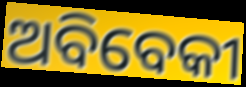
ଅବିବେକୀ